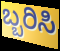
ಬ್ಬರಿಸಿ